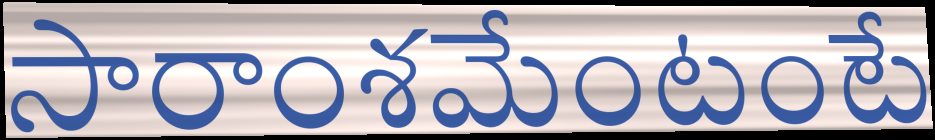
సారాంశమేంటంటే